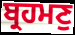
ਬ੍ਰਹਮਣੁ